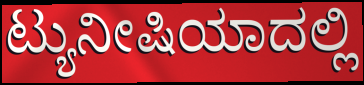
ಟ್ಯುನೀಷಿಯಾದಲ್ಲಿ